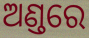
ଅଣ୍ଡରେ